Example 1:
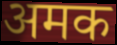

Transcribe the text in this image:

अमक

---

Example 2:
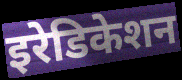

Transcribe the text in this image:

इरेडिकेशन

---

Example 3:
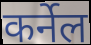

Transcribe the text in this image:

कर्नेल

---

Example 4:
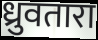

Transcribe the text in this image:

ध्रुवतारा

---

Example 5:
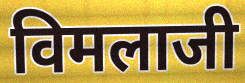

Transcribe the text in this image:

विमलाजी